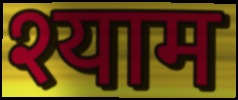
श्याम